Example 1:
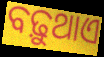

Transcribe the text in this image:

ବଢ଼ୁଥାଏ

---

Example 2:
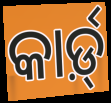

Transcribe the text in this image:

କାର୍ଡ଼୍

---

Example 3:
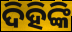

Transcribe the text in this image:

ଦିହିଙ୍କି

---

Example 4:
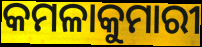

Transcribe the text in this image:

କମଳାକୁମାରୀ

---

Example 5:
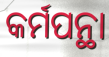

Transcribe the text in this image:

କର୍ମପନ୍ଥା